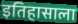
इतिहासाला